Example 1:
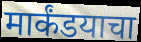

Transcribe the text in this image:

मार्कंडयाचा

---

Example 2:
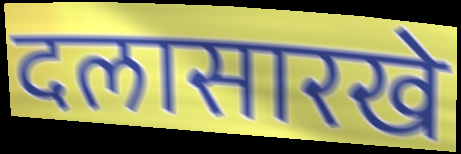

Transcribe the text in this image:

दलासारखे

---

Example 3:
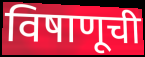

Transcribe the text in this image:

विषाणूची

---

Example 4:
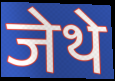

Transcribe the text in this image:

जेथे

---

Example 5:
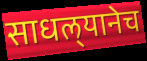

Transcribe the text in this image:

साधल्यानेच